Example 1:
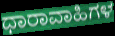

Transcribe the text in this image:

ಧಾರಾವಾಹಿಗಳ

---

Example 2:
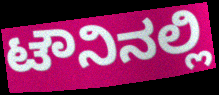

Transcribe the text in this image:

ಟೌನಿನಲ್ಲಿ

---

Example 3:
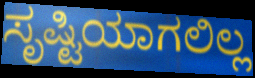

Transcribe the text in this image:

ಸೃಷ್ಟಿಯಾಗಲಿಲ್ಲ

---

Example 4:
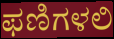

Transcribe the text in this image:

ಫಣಿಗಳಲಿ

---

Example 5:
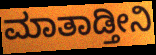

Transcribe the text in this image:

ಮಾತಾಡ್ತೀನಿ